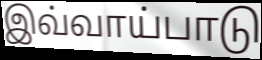
இவ்வாய்பாடு